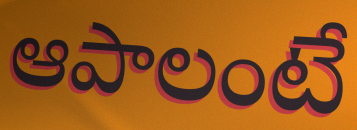
ఆపాలంటే